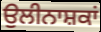
ਉਲੀਨਾਸ਼ਕਾਂ